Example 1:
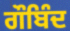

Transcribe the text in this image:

ਗੌਬਿੰਦ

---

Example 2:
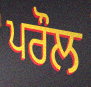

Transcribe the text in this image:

ਪਰੌਲ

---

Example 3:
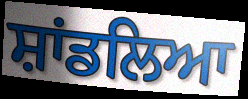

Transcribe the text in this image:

ਸ਼ਾਂਡਲਿਆ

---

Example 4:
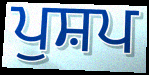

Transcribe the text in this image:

ਪੁਸ਼ਪ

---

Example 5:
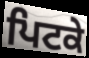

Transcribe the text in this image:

ਪਿਟਕੇ